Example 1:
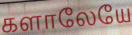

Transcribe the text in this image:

களாலேயே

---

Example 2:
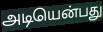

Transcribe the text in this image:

அடியென்பது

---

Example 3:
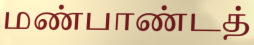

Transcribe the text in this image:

மண்பாண்டத்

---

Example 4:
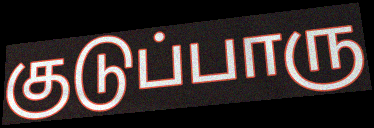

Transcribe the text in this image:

குடுப்பாரு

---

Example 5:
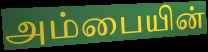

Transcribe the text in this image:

அம்பையின்